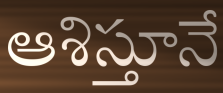
ఆశిస్తూనే